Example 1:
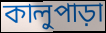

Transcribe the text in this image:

কালুপাড়া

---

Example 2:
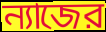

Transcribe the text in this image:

ন্যাজের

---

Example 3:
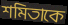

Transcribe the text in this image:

শমিতাকে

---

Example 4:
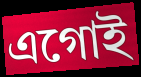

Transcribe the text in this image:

এগোই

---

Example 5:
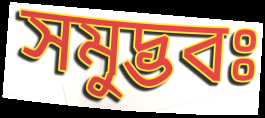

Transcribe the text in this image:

সমুদ্ভবঃ